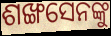
ଶଙ୍ଖସେନଙ୍କୁ